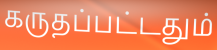
கருதப்பட்டதும்